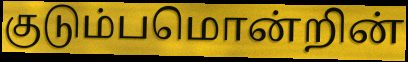
குடும்பமொன்றின்